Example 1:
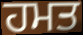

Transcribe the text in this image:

ਹਮਤ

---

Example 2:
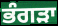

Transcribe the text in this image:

ਭੰਗੜਾ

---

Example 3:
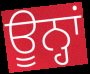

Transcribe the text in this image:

ਊਨ੍ਹਾਂ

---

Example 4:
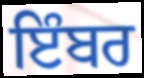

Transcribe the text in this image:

ਇੰਬਰ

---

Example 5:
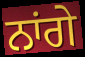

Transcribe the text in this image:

ਨਾਂਗੇ